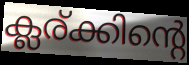
ക്ലര്ക്കിന്റെ